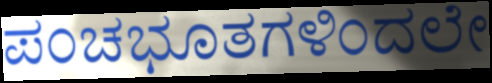
ಪಂಚಭೂತಗಳಿಂದಲೇ